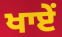
ਖਾਏਂ